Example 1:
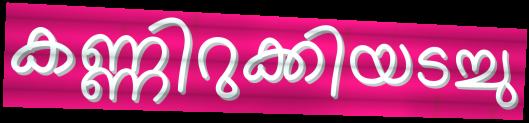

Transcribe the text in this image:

കണ്ണിറുക്കിയടച്ചു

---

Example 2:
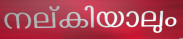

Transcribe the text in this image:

നല്‌കിയാലും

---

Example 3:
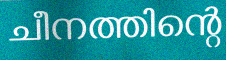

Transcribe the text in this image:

ചീനത്തിന്റെ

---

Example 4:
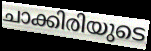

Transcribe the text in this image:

ചാക്കിരിയുടെ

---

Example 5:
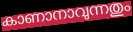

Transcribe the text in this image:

കാണാനാവുന്നതും